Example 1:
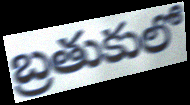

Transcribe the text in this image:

బ్రతుకులో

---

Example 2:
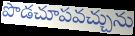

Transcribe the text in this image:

పొడచూపవచ్చును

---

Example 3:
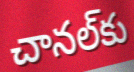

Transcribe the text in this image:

చానల్‌కు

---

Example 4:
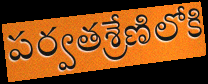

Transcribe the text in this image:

పర్వతశ్రేణిలోకి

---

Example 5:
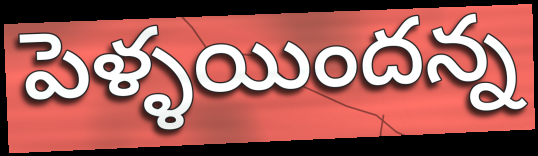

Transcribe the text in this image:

పెళ్ళయిందన్న